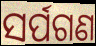
ସର୍ପଗଣ